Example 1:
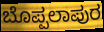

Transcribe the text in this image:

ಬೊಪ್ಪಲಾಪುರ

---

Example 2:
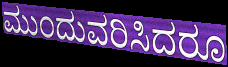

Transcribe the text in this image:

ಮುಂದುವರಿಸಿದರೂ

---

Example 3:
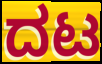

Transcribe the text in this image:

ದಟ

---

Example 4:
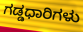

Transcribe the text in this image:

ಗಡ್ಡಧಾರಿಗಳು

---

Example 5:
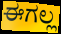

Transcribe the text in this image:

ಈಗಲ್ಲ